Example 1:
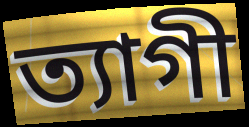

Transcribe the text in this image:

ত্যাগী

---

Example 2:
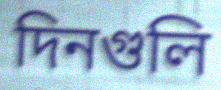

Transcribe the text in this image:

দিনগুলি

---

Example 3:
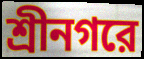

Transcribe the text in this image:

শ্রীনগরে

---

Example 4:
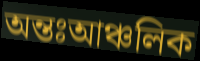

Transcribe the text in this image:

অন্তঃআঞ্চলিক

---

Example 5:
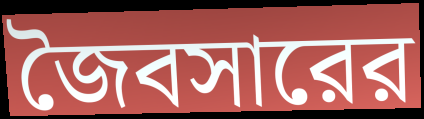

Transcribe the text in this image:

জৈবসারের